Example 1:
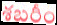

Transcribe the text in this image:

శబరీం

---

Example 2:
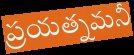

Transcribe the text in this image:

ప్రయత్నమనీ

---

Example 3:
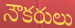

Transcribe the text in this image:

నౌకరులు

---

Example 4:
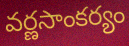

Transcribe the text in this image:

వర్ణసాంకర్యం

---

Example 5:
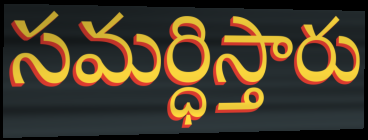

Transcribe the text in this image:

సమర్ధిస్తారు